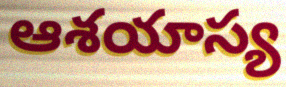
ఆశయాస్య